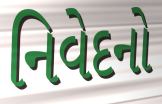
નિવેદનો